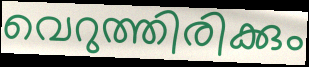
വെറുത്തിരിക്കും